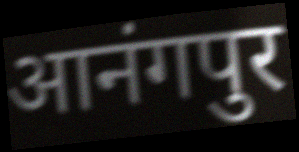
आनंगपुर